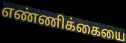
எண்ணிக்கையை